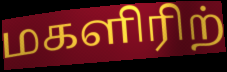
மகளிரிற்